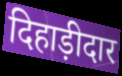
दिहाड़ीदार